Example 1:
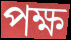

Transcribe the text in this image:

পক্ষ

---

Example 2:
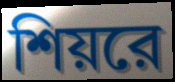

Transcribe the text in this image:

শিয়রে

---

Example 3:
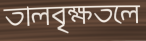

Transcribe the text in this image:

তালবৃক্ষতলে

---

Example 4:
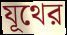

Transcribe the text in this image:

যূথের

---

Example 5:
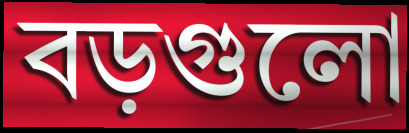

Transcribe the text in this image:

বড়গুলো